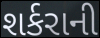
શર્કરાની